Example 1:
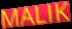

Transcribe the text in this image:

MALIK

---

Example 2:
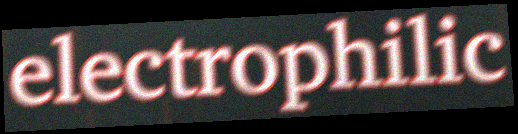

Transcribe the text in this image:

electrophilic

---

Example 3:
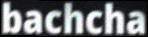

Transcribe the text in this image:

bachcha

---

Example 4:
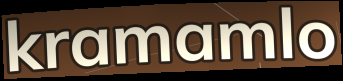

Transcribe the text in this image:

kramamlo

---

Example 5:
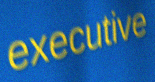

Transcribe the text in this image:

executive